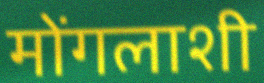
मोंगलाशी